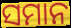
ସମାନ